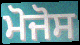
ਮੋਜੋਸ